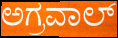
ಅಗ್ರವಾಲ್